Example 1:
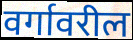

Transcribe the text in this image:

वर्गावरील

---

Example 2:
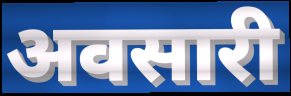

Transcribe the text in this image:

अवसारी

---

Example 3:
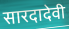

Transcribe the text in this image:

सारदादेवी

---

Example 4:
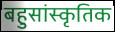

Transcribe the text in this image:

बहुसांस्कृतिक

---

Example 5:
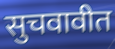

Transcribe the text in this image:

सुचवावीत